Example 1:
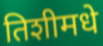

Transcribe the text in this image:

तिशीमधे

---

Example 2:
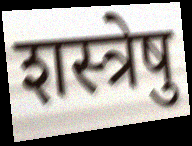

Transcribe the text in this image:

शस्त्रेषु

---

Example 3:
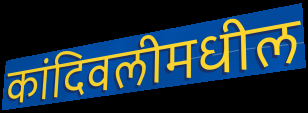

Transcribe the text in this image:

कांदिवलीमधील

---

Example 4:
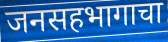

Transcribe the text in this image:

जनसहभागाचा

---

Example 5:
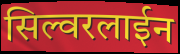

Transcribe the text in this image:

सिल्वरलाईन